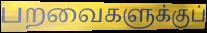
பறவைகளுக்குப்